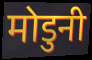
मोडुनी